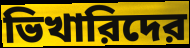
ভিখারিদের